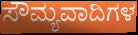
ಸೌಮ್ಯವಾದಿಗಳ